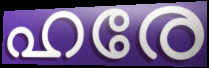
ഹരേ